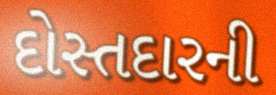
દોસ્તદારની